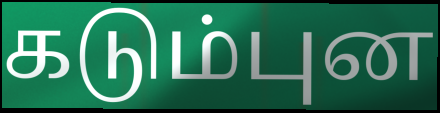
கடும்புன